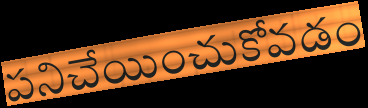
పనిచేయించుకోవడం